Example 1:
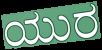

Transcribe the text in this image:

ಯುರ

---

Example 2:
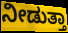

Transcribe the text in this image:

ನೀಡುತ್ತಾ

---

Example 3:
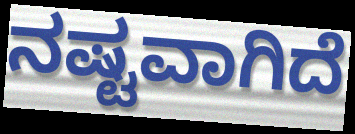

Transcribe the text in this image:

ನಷ್ಟವಾಗಿದೆ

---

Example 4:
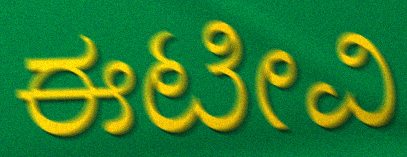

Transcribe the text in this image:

ಈಟೀವಿ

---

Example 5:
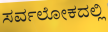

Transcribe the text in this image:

ಸರ್ವಲೋಕದಲ್ಲಿ